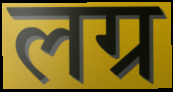
लग्र